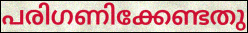
പരിഗണിക്കേണ്ടതു